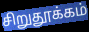
சிறுதூக்கம்